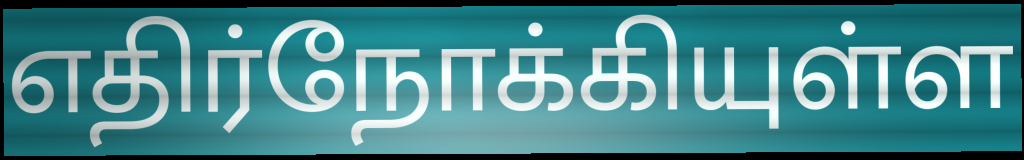
எதிர்நோக்கியுள்ள